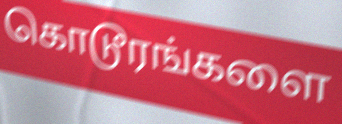
கொடூரங்களை